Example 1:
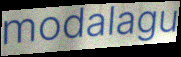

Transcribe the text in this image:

modalagu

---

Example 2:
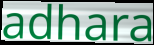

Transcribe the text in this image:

adhara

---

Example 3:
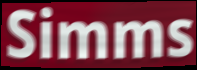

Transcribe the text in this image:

Simms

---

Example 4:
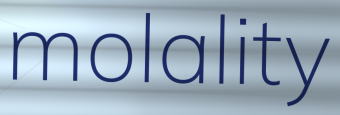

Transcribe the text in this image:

molality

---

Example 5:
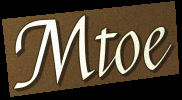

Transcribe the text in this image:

Mtoe